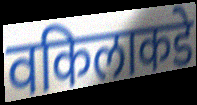
वकिलाकडे